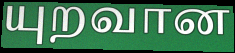
யுறவான